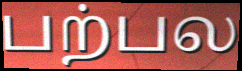
பற்பல